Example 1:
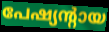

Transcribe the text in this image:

പേഷ്യന്റായ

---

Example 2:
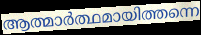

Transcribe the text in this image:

ആത്മാർത്ഥമായിത്തന്നെ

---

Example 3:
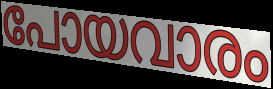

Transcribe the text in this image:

പോയവാരം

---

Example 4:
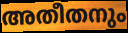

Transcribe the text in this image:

അതീതനും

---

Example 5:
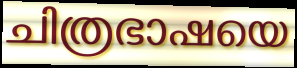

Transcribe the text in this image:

ചിത്രഭാഷയെ